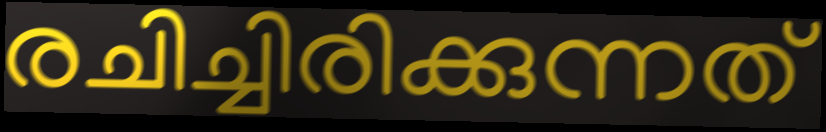
രചിച്ചിരിക്കുന്നത്